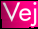
Vej